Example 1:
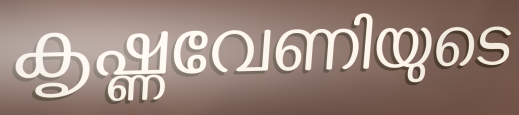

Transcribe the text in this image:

കൃഷ്ണവേണിയുടെ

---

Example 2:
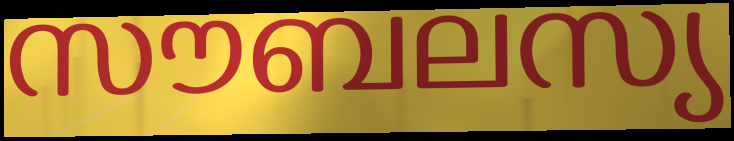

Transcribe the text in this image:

സൗബലസ്യ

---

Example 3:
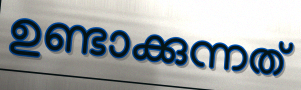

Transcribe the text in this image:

ഉണ്ടാക്കുന്നത്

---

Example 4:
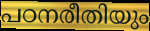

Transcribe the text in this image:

പഠനരീതിയും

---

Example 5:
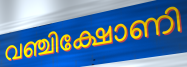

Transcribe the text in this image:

വഞ്ചിക്ഷോണി